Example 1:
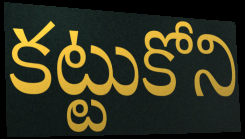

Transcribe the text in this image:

కట్టుకోని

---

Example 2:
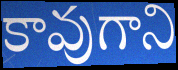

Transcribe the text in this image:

కావుగాని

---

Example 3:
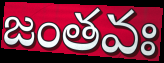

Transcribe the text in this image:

జంతవః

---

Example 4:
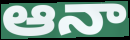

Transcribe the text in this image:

ఆనా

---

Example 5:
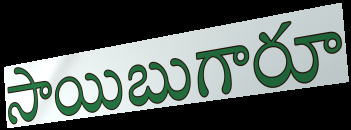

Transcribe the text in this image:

సాయిబుగారూ